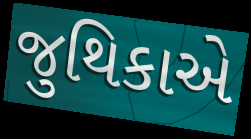
જુથિકાએ